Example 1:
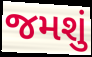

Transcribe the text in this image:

જમશું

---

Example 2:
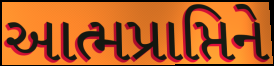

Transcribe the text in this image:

આત્મપ્રાપ્તિને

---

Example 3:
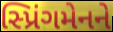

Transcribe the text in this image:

સ્પ્રિંગમેનને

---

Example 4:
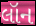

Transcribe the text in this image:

લૉન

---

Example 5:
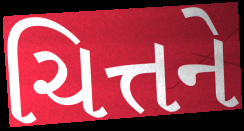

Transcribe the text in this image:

ચિત્તને